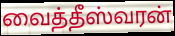
வைத்தீஸ்வரன்